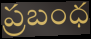
ప్రబంధ